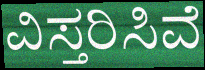
ವಿಸ್ತರಿಸಿವೆ